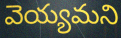
వెయ్యమని